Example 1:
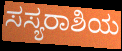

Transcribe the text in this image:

ಸಸ್ಯರಾಶಿಯ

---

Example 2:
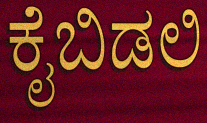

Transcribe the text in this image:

ಕೈಬಿಡಲಿ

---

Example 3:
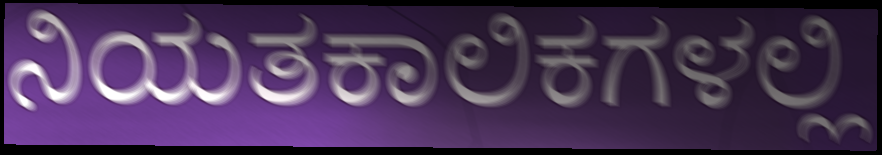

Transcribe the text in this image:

ನಿಯತಕಾಲಿಕಗಳಲ್ಲಿ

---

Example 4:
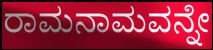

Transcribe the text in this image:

ರಾಮನಾಮವನ್ನೇ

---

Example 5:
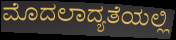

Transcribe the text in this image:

ಮೊದಲಾದ್ಯತೆಯಲ್ಲಿ